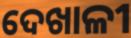
ଦେଖାଳୀ